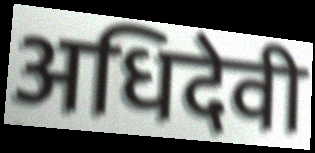
अधिदेवी